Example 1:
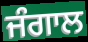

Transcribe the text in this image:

ਜੰਗਾਲ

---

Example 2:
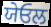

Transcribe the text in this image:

ਯੇਓਲ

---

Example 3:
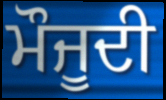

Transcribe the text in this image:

ਮੌਜੂਦੀ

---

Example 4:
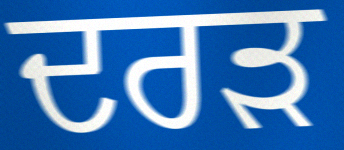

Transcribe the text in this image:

ਦਰੜ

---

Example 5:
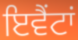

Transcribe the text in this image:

ਇਵੈਂਟਾਂ